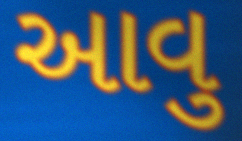
આવુ